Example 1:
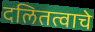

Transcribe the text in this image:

दलितत्वाचे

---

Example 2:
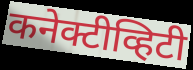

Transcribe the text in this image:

कनेक्टीव्हिटी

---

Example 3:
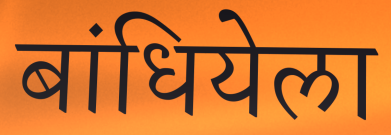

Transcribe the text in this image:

बांधियेला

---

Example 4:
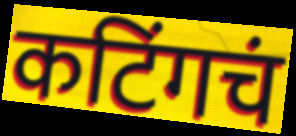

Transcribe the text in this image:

कटिंगचं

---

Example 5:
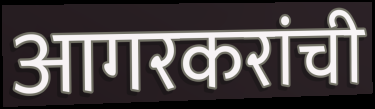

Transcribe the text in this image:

आगरकरांची